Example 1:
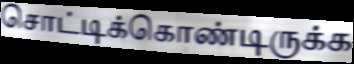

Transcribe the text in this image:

சொட்டிக்கொண்டிருக்க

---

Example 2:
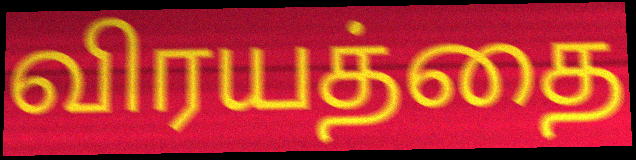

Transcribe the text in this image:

விரயத்தை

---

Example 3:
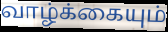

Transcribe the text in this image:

வாழ்க்கையும்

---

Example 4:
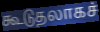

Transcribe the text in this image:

கூடுதலாகச்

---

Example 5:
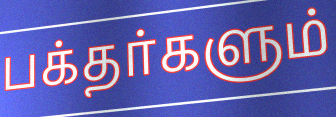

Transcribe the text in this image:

பக்தர்களும்